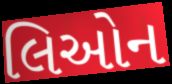
લિઓન